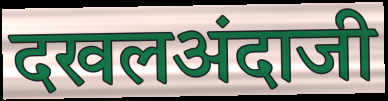
दखलअंदाजी